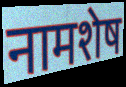
नामशेष